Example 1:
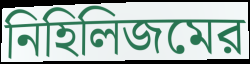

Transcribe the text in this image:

নিহিলিজমের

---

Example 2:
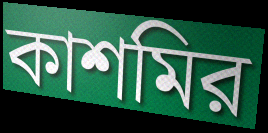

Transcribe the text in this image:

কাশমির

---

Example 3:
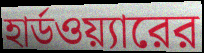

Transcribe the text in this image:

হার্ডওয়্যারের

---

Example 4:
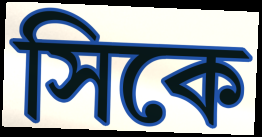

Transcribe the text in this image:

সিকে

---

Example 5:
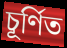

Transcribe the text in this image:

চূর্ণিত